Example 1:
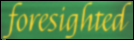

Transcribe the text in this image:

foresighted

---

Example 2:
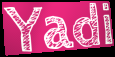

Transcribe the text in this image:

Yadi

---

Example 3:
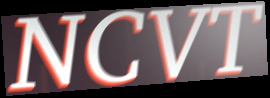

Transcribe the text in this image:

NCVT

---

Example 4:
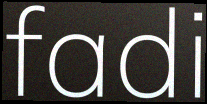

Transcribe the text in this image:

fadi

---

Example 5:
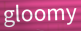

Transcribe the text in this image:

gloomy